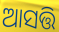
ଆସତ୍ତି